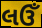
લઉઁ